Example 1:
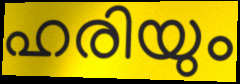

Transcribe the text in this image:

ഹരിയും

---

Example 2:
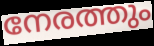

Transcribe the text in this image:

നേരത്തും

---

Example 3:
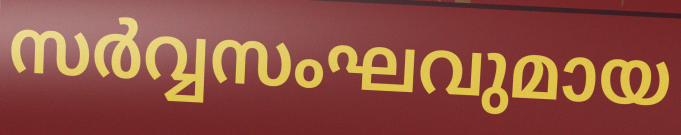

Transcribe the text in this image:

സർവ്വസംഘവുമായ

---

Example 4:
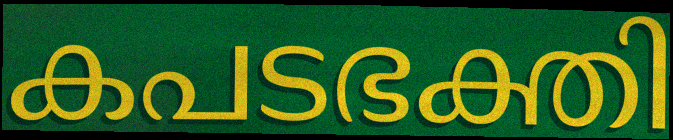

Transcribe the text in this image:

കപടഭക്തി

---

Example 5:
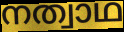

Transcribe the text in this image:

നത്വാഥ